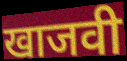
खाजवी